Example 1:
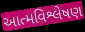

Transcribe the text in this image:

આત્મવિશ્લેષણ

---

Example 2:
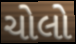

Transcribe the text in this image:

ચોલો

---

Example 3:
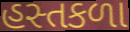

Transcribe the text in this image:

હસ્તકળા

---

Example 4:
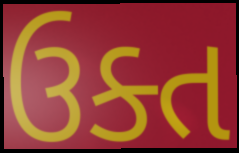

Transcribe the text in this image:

ઉક્ત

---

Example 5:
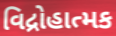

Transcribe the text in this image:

વિદ્રોહાત્મક